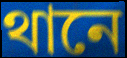
থানে